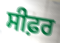
ਸੀਫ਼ਰ